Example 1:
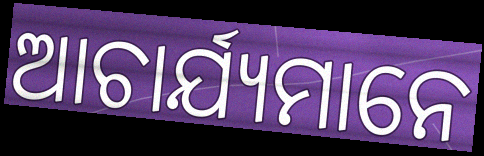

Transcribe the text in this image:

ଆଚାର୍ଯ୍ୟମାନେ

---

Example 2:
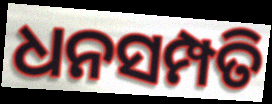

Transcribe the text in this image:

ଧନସମ୍ପତି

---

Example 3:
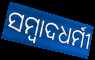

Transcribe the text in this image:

ସମ୍ବାଦଧର୍ମୀ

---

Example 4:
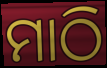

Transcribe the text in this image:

ମାଠି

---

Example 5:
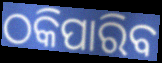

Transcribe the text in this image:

ଠକିପାରିବ